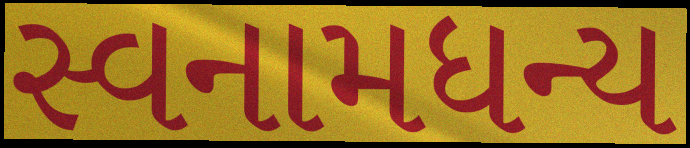
સ્વનામધન્ય